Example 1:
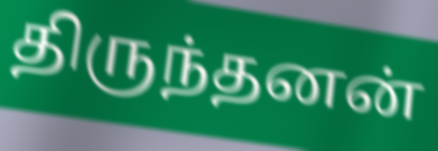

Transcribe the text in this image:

திருந்தனன்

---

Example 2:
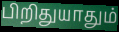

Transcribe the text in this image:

பிறிதுயாதும்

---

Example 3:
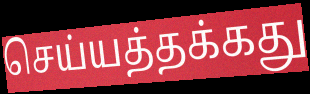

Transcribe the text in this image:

செய்யத்தக்கது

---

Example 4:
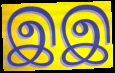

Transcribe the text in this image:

இஇ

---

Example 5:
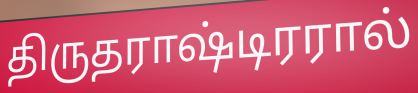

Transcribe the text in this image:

திருதராஷ்டிரரால்